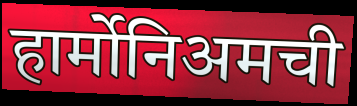
हार्मोनिअमची